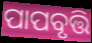
ପାପବୃତ୍ତି